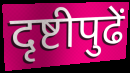
दृष्टीपुढें